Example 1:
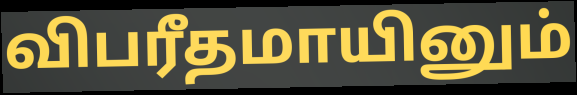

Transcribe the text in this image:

விபரீதமாயினும்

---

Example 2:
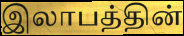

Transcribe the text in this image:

இலாபத்தின்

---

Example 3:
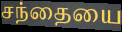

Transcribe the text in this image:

சந்தையை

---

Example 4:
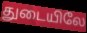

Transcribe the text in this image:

துடையிலே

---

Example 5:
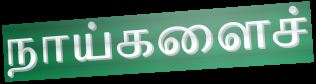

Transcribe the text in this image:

நாய்களைச்